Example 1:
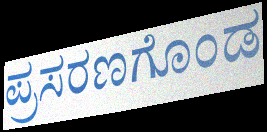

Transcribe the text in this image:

ಪ್ರಸರಣಗೊಂಡ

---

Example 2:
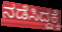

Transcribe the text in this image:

ನಡೆಸಿದ್ದಕ್ಕೆ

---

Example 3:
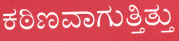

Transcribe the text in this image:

ಕಠಿಣವಾಗುತ್ತಿತ್ತು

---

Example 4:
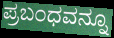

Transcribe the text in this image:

ಪ್ರಬಂಧವನ್ನೂ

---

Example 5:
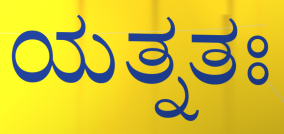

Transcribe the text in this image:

ಯತ್ನತಃ